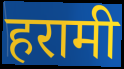
हरामी